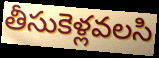
తీసుకెళ్లవలసి